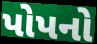
પોપનો